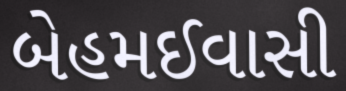
બેહમઈવાસી